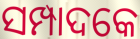
ସମ୍ପାଦକେ